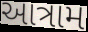
આત્રામ